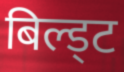
बिल्ड्ट